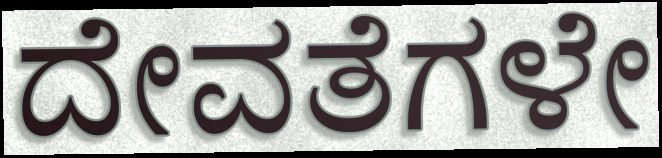
ದೇವತೆಗಳೇ